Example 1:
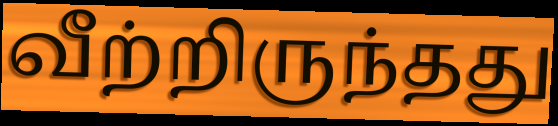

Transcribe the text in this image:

வீற்றிருந்தது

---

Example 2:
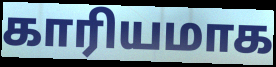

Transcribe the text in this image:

காரியமாக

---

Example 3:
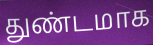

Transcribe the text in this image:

துண்டமாக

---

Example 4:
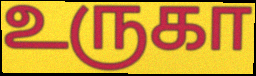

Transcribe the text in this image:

உருகா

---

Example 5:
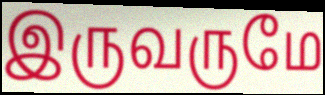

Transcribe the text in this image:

இருவருமே